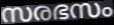
സരഭസം